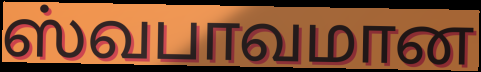
ஸ்வபாவமான